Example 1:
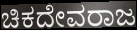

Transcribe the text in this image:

ಚಿಕದೇವರಾಜ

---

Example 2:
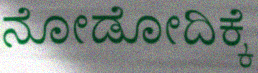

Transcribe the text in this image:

ನೋಡೋದಿಕ್ಕೆ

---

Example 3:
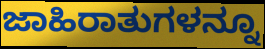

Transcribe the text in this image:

ಜಾಹಿರಾತುಗಳನ್ನೂ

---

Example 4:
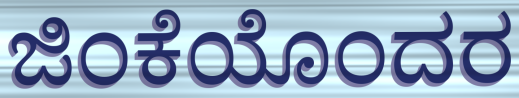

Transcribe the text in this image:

ಜಿಂಕೆಯೊಂದರ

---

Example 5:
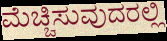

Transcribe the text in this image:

ಮೆಚ್ಚಿಸುವುದರಲ್ಲಿ